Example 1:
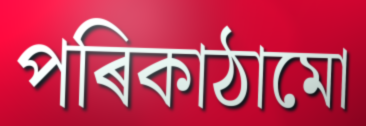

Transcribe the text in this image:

পৰিকাঠামো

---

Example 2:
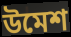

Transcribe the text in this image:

উমেশ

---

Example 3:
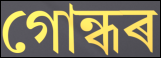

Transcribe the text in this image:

গোন্ধৰ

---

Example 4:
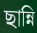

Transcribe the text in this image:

ছান্নি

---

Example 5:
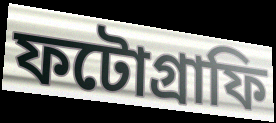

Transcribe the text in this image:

ফটোগ্ৰাফি